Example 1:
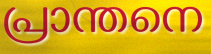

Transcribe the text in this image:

പ്രാന്തനെ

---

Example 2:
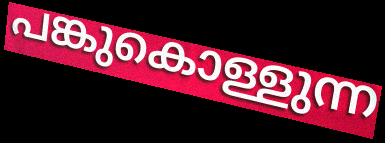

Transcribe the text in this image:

പങ്കുകൊള്ളുന്ന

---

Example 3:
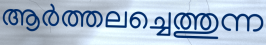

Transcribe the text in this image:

ആർത്തലച്ചെത്തുന്ന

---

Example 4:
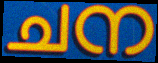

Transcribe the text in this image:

ചന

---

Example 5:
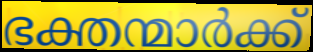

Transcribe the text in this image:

ഭക്തന്മാർക്ക്